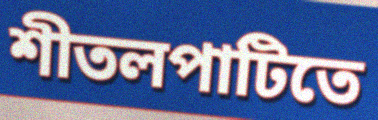
শীতলপাটিতে